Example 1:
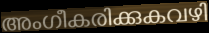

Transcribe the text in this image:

അംഗീകരിക്കുകവഴി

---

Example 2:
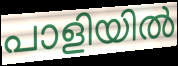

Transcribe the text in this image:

പാളിയിൽ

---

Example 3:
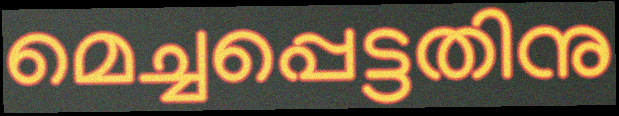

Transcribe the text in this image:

മെച്ചപ്പെട്ടതിനു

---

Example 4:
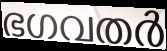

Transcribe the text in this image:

ഭഗവതർ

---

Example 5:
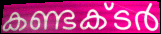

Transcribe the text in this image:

കണ്ടക്ടർ